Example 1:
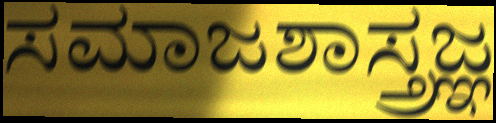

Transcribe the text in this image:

ಸಮಾಜಶಾಸ್ತ್ರಜ್ಞ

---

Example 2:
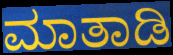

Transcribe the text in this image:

ಮಾತಾಡಿ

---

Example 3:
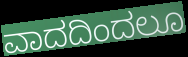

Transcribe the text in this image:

ವಾದದಿಂದಲೂ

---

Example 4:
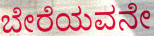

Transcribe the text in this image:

ಬೇರೆಯವನೇ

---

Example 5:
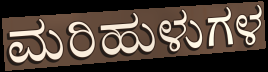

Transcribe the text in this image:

ಮರಿಹುಳುಗಳ